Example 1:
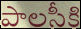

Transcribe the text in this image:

పాలసీకి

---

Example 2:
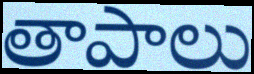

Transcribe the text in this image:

తాపాలు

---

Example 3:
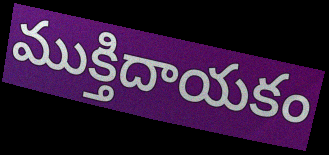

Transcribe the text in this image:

ముక్తిదాయకం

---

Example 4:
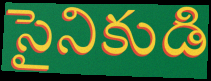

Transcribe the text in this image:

సైనికుడి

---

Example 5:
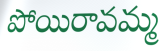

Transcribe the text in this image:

పోయిరావమ్మ